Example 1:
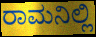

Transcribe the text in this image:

ರಾಮನಿಲ್ಲಿ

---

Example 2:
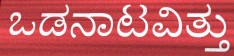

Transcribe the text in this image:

ಒಡನಾಟವಿತ್ತು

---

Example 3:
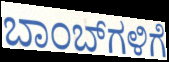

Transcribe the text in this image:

ಬಾಂಬ್‌ಗಳಿಗೆ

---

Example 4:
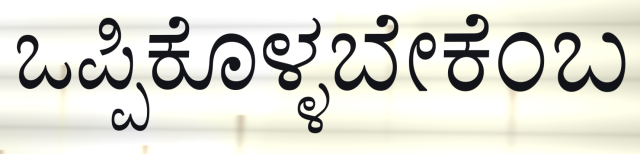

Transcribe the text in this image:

ಒಪ್ಪಿಕೊಳ್ಳಬೇಕೆಂಬ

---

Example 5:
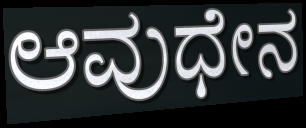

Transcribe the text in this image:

ಆವುಧೇನ